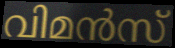
വിമൻസ്